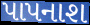
પાપનાશ